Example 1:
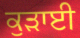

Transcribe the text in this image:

ਕੁੜਾਈ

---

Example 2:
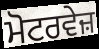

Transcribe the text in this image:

ਮੋਟਰਵੇਜ਼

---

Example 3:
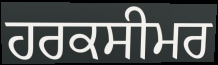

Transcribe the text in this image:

ਹਰਕਸੀਮਰ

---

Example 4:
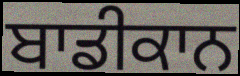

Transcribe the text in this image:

ਬਾਡੀਕਾਨ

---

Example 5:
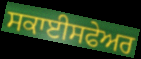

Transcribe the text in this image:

ਸਕਾਈਸਫੇਅਰ